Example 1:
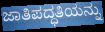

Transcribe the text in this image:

ಜಾತಿಪದ್ಧತಿಯನ್ನು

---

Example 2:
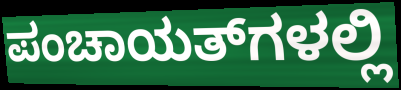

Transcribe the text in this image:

ಪಂಚಾಯತ್‌ಗಳಲ್ಲಿ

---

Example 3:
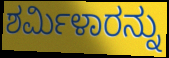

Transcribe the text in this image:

ಶರ್ಮಿಳಾರನ್ನು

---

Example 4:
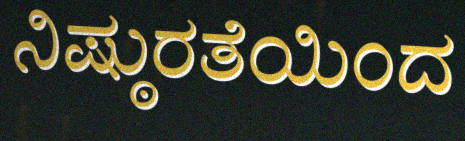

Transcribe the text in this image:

ನಿಷ್ಠುರತೆಯಿಂದ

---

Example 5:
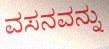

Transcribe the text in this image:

ವಸನವನ್ನು